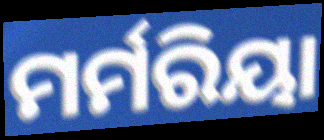
ମର୍ମରିୟା